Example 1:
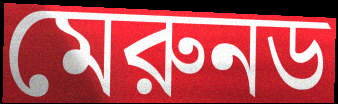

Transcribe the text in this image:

মেরুনড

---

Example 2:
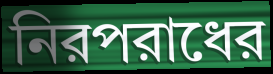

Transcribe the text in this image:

নিরপরাধের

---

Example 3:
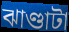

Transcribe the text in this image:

ঝাণ্ডাটা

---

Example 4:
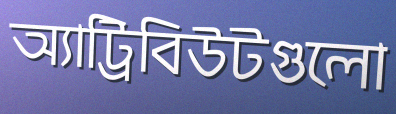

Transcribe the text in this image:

অ্যাট্রিবিউটগুলো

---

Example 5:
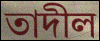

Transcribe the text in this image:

তাদীল